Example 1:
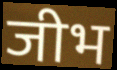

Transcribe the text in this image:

जीभ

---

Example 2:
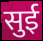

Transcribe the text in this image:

सुई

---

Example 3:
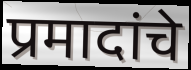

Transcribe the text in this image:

प्रमादांचे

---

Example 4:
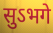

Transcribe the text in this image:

सुऽभगे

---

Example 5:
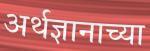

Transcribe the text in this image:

अर्थज्ञानाच्या